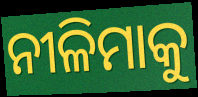
ନୀଳିମାକୁ